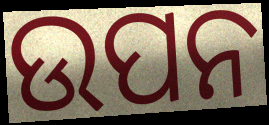
ଉପନ